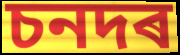
চনদৰ